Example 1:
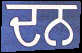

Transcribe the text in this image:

ਦਨ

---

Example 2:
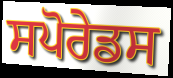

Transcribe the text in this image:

ਸਪੋਰੇਡਸ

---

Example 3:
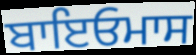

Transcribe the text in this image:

ਬਾਇਓਮਾਸ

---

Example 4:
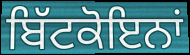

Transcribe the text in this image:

ਬਿੱਟਕੋਇਨਾਂ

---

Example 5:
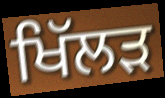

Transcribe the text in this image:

ਖਿੱਲੜ